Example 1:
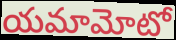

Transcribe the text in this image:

యమామోటో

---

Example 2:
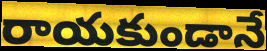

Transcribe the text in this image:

రాయకుండానే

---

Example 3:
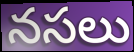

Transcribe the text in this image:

నసలు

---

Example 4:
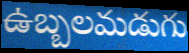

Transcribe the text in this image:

ఉబ్బలమడుగు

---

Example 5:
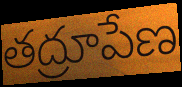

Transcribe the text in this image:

తద్రూపేణ